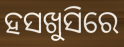
ହସଖୁସିରେ